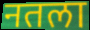
नतला